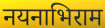
नयनाभिराम